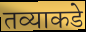
तव्याकडे